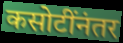
कसोटींनंतर